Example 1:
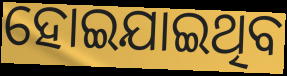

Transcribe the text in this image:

ହୋଇଯାଇଥିବ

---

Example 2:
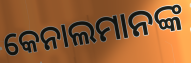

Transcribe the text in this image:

କେନାଲମାନଙ୍କ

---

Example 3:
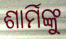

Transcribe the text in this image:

ଶାର୍ମିଙ୍କୁ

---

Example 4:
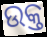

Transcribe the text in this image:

ଉକ୍ତ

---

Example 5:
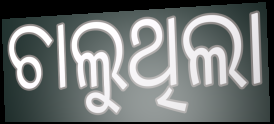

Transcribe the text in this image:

ଚାଲୁଥିଲା